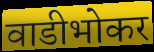
वाडीभोकर